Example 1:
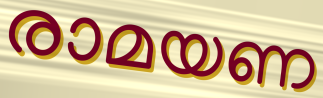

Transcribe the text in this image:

രാമയണ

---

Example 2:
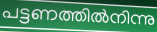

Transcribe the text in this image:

പട്ടണത്തിൽനിന്നു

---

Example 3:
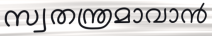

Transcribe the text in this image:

സ്വതന്ത്രമാവാൻ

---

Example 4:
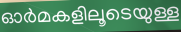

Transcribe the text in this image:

ഓർമകളിലൂടെയുള്ള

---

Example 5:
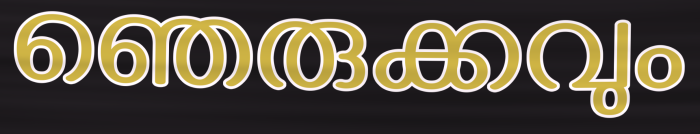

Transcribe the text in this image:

ഞെരുക്കവും